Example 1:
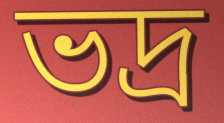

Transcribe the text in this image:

ভদ্র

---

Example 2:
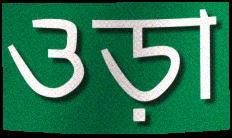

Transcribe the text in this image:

ওড়া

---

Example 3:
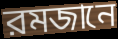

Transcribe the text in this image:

রমজানে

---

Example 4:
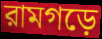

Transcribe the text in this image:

রামগড়ে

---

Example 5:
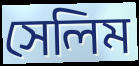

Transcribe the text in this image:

সেলিম